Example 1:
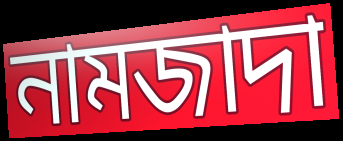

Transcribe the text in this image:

নামজাদা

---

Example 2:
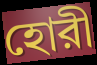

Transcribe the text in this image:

হোরী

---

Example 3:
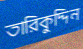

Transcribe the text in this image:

তারিকুদ্দিন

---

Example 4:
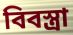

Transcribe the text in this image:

বিবস্ত্রা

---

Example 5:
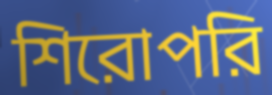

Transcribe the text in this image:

শিরোপরি